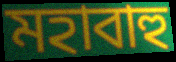
মহাবাহু